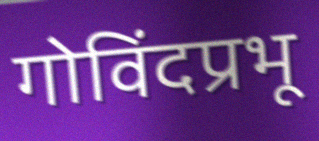
गोविंदप्रभू